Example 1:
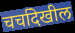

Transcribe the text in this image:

चर्चादेखील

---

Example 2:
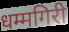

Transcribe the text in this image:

धम्मगिरी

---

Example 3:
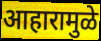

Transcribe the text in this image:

आहारामुळे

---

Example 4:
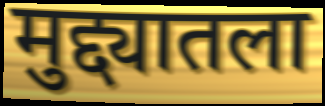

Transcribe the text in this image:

मुद्द्यातला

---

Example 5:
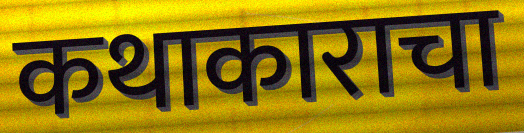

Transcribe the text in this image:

कथाकाराचा